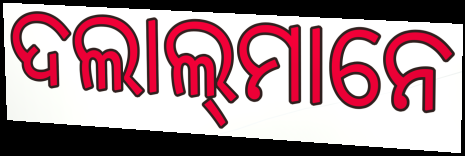
ଦଲାଲ୍‍ମାନେ